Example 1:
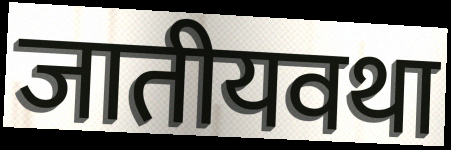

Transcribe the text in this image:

जातीयवथा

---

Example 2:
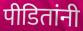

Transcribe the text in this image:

पीडितांनी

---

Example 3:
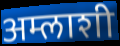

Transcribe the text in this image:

अम्लाशी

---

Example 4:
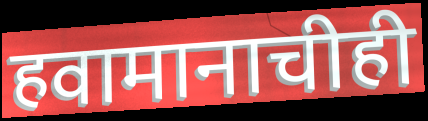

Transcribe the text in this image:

हवामानाचीही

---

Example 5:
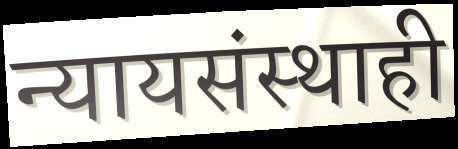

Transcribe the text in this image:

न्यायसंस्थाही